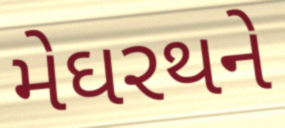
મેઘરથને